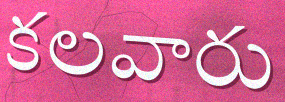
కలవారు